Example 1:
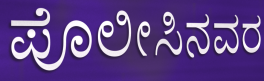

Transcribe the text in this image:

ಪೊಲೀಸಿನವರ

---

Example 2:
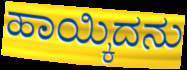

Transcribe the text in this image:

ಹಾಯ್ಕಿದನು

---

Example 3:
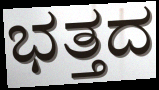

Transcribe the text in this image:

ಭತ್ತದ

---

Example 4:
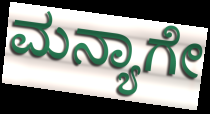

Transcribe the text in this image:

ಮನ್ಯಾಗೇ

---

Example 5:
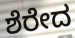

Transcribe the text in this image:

ಶೆರೇದ